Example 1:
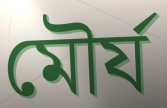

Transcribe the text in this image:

মৌৰ্য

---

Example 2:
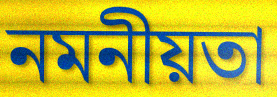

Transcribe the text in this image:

নমনীয়তা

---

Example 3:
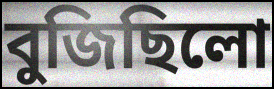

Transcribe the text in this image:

বুজিছিলো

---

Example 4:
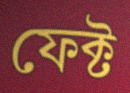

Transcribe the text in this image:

ফেক্ট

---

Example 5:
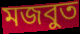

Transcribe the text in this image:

মজবুত